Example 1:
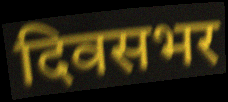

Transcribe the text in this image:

दिवसभर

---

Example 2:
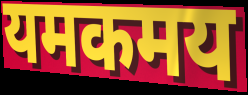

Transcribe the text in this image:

यमकमय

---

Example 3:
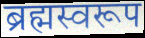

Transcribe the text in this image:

ब्रह्मस्वरूप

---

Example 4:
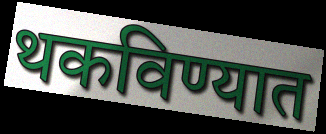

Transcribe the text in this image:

थकविण्यात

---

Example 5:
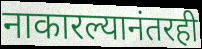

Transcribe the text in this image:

नाकारल्यानंतरही